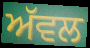
ਅੱਵਲ